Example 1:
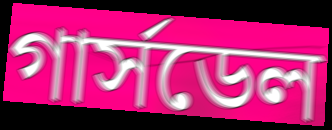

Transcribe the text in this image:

গার্সডেল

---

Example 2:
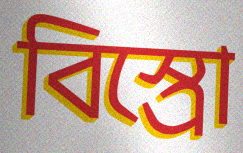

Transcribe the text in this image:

বিস্ত্রো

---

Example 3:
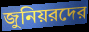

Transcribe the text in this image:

জুনিয়রদের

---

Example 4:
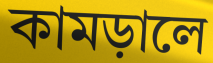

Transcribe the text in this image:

কামড়ালে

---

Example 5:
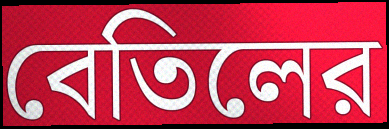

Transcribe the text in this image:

বেতিলের